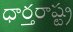
ధార్తరాష్ట్ర